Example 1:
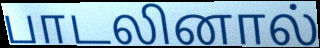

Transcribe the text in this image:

பாடலினால்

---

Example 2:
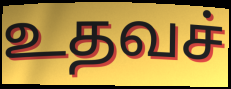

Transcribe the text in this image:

உதவச்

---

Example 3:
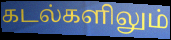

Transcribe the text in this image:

கடல்களிலும்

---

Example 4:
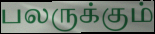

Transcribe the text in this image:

பலருக்கும்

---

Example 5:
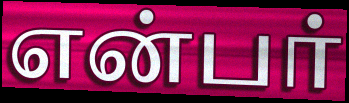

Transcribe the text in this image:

என்பர்